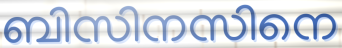
ബിസിനസിനെ